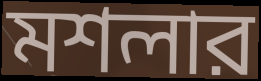
মশলার